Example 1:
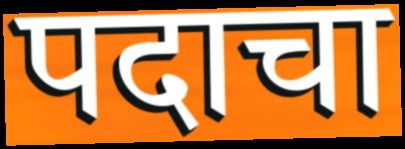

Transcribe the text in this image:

पदाचा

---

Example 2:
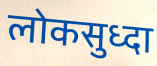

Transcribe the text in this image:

लोकसुध्दा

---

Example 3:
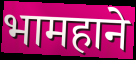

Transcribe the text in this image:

भामहाने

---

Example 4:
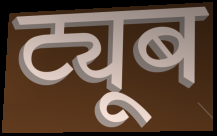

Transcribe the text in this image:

ट्यूब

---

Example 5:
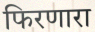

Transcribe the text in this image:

फिरणारा